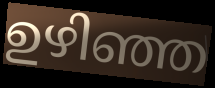
ഉഴിഞ്ഞ